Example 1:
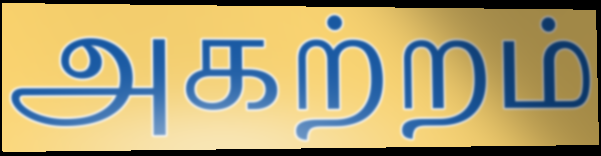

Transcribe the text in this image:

அகற்றம்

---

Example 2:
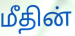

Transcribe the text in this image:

மீதின்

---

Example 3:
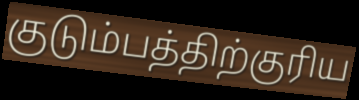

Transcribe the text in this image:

குடும்பத்திற்குரிய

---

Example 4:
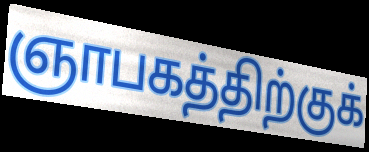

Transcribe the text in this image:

ஞாபகத்திற்குக்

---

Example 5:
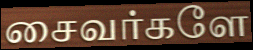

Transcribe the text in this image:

சைவர்களே